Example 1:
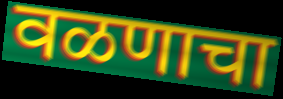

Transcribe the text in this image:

वळणाचा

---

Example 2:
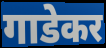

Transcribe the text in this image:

गाडेकर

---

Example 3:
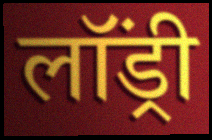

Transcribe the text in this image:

लॉंड्री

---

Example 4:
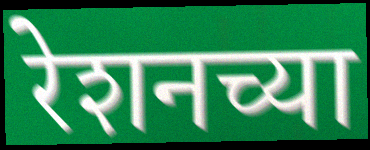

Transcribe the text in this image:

रेशनच्या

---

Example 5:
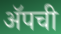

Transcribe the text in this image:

ॲपची